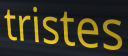
tristes